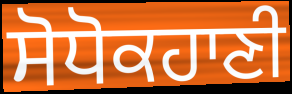
ਸੋਧੋਕਹਾਣੀ